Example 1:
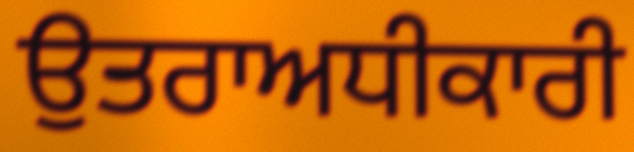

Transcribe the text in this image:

ਉਤਰਾਅਧੀਕਾਰੀ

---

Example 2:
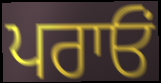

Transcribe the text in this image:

ਪਰਾਓਂ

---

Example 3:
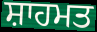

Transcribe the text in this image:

ਸ਼ਾਹਮਤ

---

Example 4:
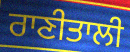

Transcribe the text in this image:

ਰਾਣੀਤਾਲੀ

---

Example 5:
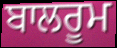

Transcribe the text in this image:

ਬਾਲਰੂਮ